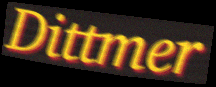
Dittmer